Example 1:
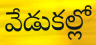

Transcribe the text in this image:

వేడుకల్లో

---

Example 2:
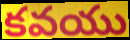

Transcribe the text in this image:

కవయు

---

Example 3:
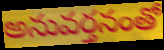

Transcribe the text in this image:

అనువర్తనంతో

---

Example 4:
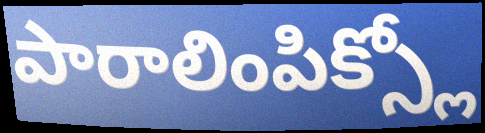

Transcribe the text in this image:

పారాలింపిక్స్లో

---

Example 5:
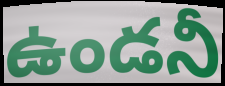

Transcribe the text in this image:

ఉండనీ